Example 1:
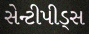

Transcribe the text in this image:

સેન્ટીપીડ્સ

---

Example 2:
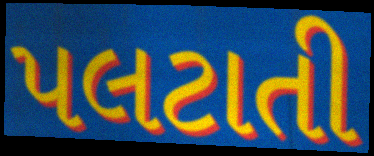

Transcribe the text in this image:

પલટાતી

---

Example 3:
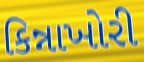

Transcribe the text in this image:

કિન્નાખોરી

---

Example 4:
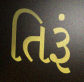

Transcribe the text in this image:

તિરૂં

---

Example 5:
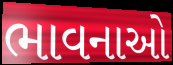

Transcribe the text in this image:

ભાવનાઓ